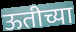
ऊतीच्या